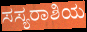
ಸಸ್ಯರಾಶಿಯ